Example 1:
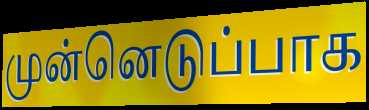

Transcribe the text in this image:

முன்னெடுப்பாக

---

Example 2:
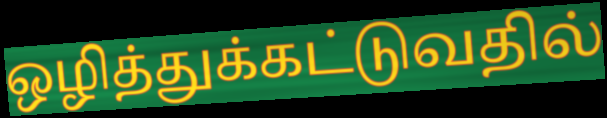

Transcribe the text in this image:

ஒழித்துக்கட்டுவதில்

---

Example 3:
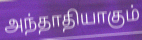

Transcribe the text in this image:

அந்தாதியாகும்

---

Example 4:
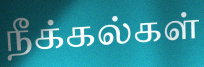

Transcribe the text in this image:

நீக்கல்கள்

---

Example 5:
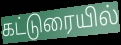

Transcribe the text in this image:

கட்டுரையில்